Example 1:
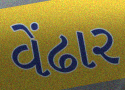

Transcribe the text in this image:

વેંઢાર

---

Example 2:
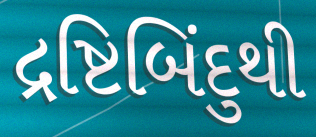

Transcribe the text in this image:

દ્રષ્ટિબિંદુથી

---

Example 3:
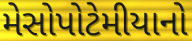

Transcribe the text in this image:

મેસોપોટેમીયાનો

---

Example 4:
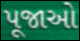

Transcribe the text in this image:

પૂજાઓ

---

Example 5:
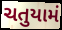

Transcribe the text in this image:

ચતુયામં